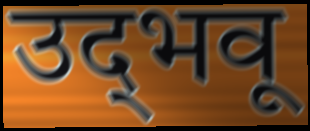
उद्‌भवू